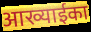
आख्याईका